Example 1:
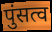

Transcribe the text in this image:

पुंसत्व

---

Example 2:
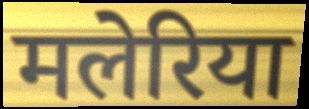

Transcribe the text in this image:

मलेरिया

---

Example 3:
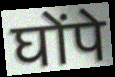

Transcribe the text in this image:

घोंपे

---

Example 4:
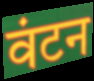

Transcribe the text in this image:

वंटन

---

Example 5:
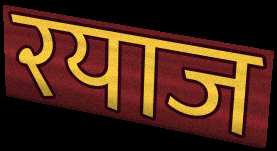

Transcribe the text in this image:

रयाज